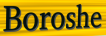
Boroshe